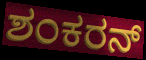
ಶಂಕರನ್